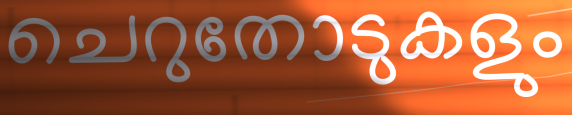
ചെറുതോടുകളും